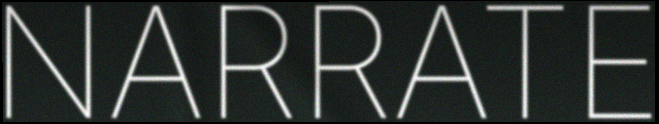
NARRATE